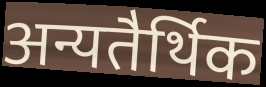
अन्यतैर्थिक